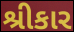
શ્રીકાર